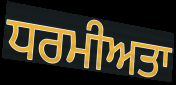
ਧਰਮੀਅਤਾ